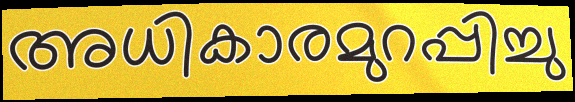
അധികാരമുറപ്പിച്ചു